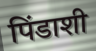
पिंडाशी